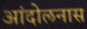
आंदोलनास